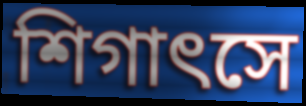
শিগাৎসে